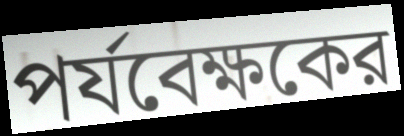
পর্যবেক্ষকের